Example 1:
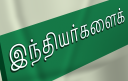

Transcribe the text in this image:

இந்தியர்களைக்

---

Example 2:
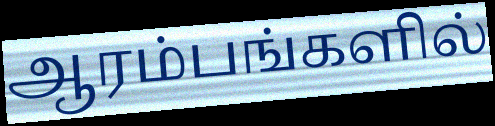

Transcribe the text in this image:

ஆரம்பங்களில்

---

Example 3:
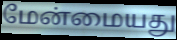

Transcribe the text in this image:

மேன்மையது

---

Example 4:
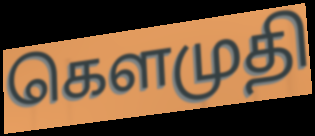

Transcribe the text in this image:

கௌமுதி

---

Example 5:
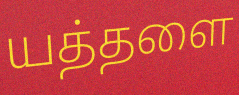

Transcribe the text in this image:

யத்தளை